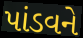
પાંડવને